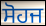
ਸੋਹਜ